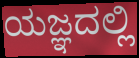
ಯಜ್ಞದಲ್ಲಿ